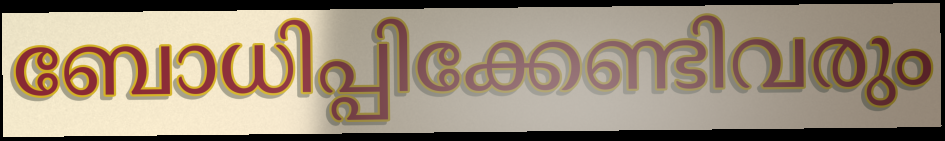
ബോധിപ്പിക്കേണ്ടിവരും